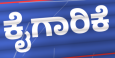
ಕೈಗಾರಿಕೆ